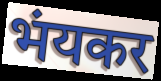
भंयकर